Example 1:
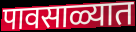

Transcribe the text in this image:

पावसाळ्यात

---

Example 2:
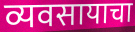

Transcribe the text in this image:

व्यवसायाचा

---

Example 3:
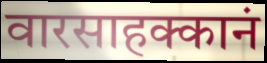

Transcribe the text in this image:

वारसाहक्कानं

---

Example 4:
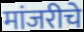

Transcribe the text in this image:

मांजरीचे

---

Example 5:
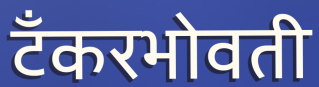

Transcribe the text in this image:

टँकरभोवती